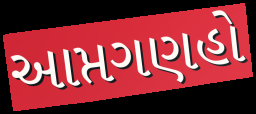
આપ્તગણહો